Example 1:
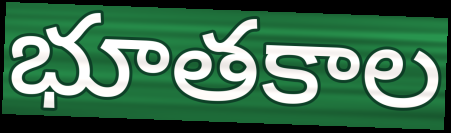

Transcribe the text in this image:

భూతకాల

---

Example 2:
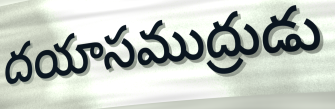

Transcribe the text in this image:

దయాసముద్రుడు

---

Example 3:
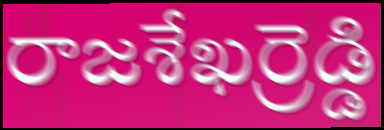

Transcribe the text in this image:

రాజశేఖర్రెడ్డి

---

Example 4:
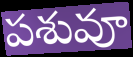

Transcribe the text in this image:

పశువూ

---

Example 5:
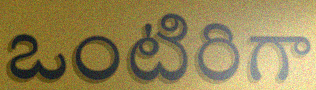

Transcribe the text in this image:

ఒంటిరిగా